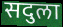
सदुला